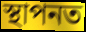
স্থাপনত